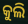
କୁଲି